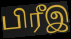
பிரீஇ